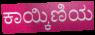
ಕಾಯ್ಕಿಣಿಯ